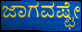
ಜಾಗವಷ್ಟೇ